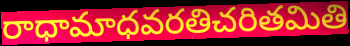
రాధామాధవరతిచరితమితి